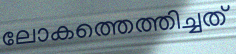
ലോകത്തെത്തിച്ചത്